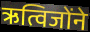
ऋत्विजोंने